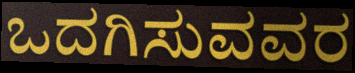
ಒದಗಿಸುವವರ